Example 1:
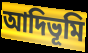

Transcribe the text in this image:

আদিভূমি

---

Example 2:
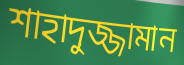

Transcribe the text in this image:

শাহাদুজ্জামান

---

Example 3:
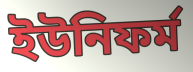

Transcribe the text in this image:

ইউনিফর্ম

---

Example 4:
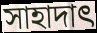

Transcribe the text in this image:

সাহাদাৎ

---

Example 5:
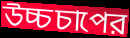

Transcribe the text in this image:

উচ্চচাপের